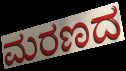
ಮರಣದ